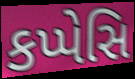
કપ્પેસિ